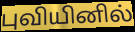
புவியினில்